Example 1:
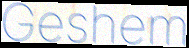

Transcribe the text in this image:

Geshem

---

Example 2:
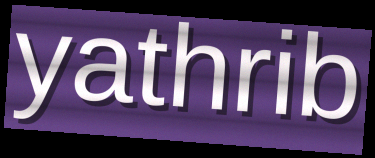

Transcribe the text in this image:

yathrib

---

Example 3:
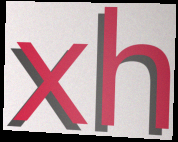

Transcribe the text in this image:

xh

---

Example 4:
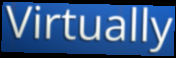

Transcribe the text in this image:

Virtually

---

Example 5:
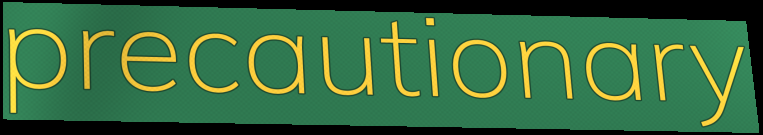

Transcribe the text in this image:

precautionary